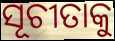
ସୂଚୀତାକୁ